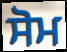
ਸੋਮ